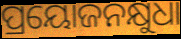
ପ୍ରୟୋଜନକ୍ଷୁଧା